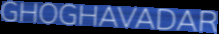
GHOGHAVADAR